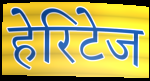
हेरिटेज